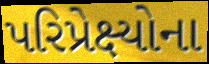
પરિપ્રેક્ષ્યોના